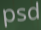
psd